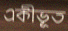
একীভূত